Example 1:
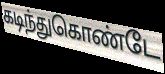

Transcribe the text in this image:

கடிந்துகொண்டே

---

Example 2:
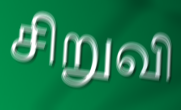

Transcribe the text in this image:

சிறுவி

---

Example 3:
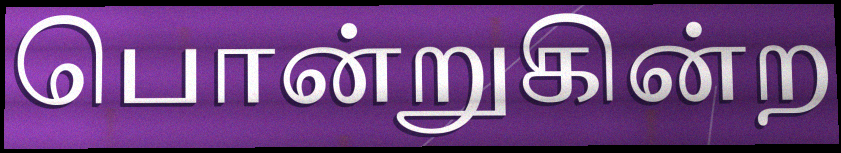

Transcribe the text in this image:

பொன்றுகின்ற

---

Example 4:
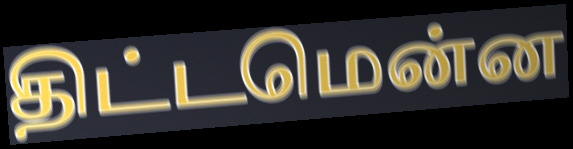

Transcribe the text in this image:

திட்டமென்ன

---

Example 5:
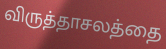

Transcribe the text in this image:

விருத்தாசலத்தை